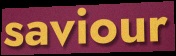
saviour